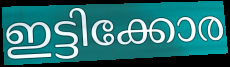
ഇട്ടിക്കോര